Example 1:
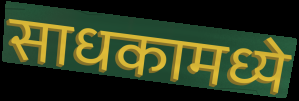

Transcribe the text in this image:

साधकामध्ये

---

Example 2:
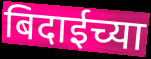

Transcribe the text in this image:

बिदाईच्या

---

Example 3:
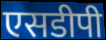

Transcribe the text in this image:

एसडीपी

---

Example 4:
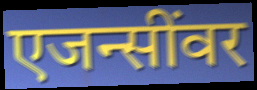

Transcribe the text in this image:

एजन्सींवर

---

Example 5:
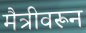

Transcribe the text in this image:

मैत्रीवरून